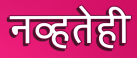
नव्हतेही